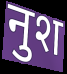
नुश